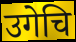
उगेचि